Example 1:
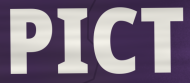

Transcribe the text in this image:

PICT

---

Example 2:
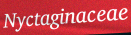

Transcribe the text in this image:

Nyctaginaceae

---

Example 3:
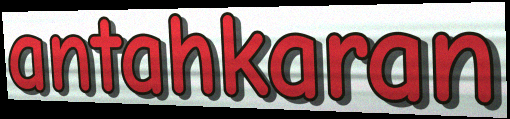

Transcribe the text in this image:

antahkaran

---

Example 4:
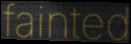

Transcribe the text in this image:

fainted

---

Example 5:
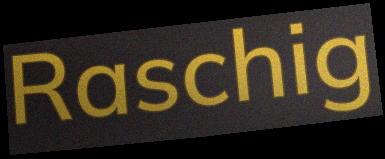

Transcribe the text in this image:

Raschig